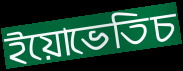
ইয়োভেতিচ